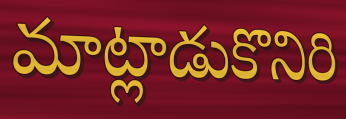
మాట్లాడుకొనిరి